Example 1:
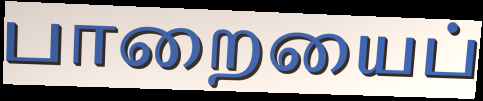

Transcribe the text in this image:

பாறையைப்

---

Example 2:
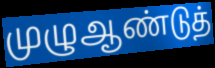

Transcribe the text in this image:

முழுஆண்டுத்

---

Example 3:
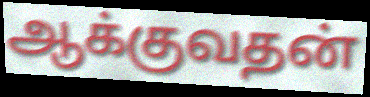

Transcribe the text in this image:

ஆக்குவதன்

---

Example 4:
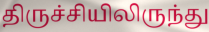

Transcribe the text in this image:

திருச்சியிலிருந்து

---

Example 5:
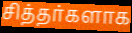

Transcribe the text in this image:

சித்தர்களாக